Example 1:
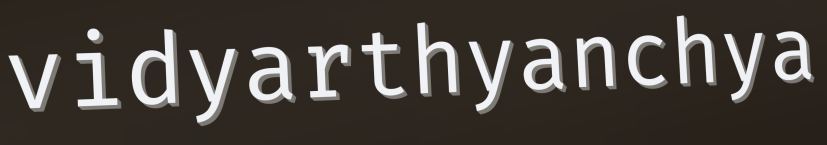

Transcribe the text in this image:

vidyarthyanchya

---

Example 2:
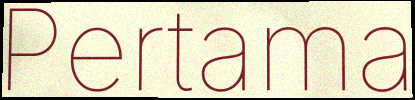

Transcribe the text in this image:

Pertama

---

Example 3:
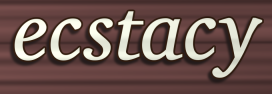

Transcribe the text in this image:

ecstacy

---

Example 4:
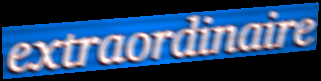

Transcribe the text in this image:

extraordinaire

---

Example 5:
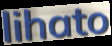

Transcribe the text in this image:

lihato